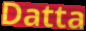
Datta